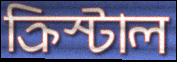
ক্রিস্টাল